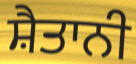
ਸ਼ੈਤਾਨੀ